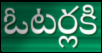
ఓటర్లకి